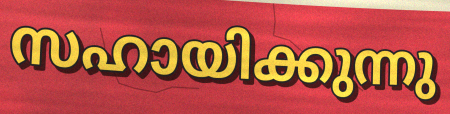
സഹായിക്കുന്നു